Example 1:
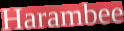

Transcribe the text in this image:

Harambee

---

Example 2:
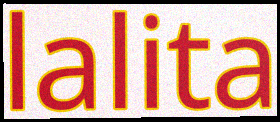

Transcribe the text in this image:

lalita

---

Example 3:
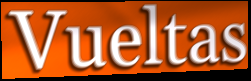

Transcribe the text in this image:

Vueltas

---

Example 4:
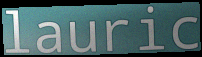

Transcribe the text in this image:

lauric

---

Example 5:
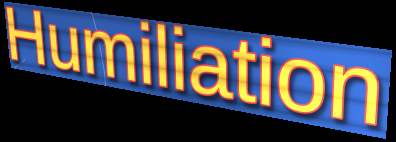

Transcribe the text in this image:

Humiliation